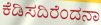
ಕೆಡಿಸದಿರೆಂದನಾ